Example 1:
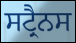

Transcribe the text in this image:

ਸਟ੍ਰੈਨਸ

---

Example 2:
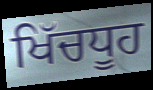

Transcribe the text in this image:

ਖਿੱਚਧੂਹ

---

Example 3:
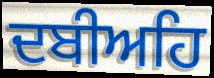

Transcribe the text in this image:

ਦਬੀਅਹਿ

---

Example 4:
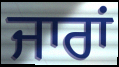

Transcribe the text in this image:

ਜਾਰਾਂ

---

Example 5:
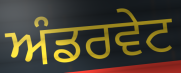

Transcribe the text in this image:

ਅੰਡਰਵੇਟ